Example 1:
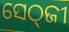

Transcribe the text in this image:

ସେଠ୍‌ଜୀ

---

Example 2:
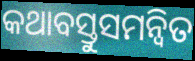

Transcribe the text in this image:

କଥାବସ୍ତୁସମନ୍ୱିତ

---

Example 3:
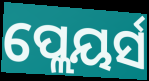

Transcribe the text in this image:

ପ୍ଲେୟର୍ସ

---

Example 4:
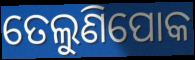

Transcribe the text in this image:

ତେଲୁଣିପୋକ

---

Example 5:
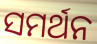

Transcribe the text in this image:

ସମର୍ଥନ